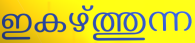
ഇകഴ്ത്തുന്ന